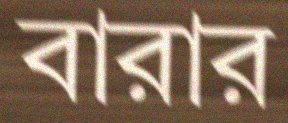
বারার